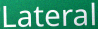
Lateral